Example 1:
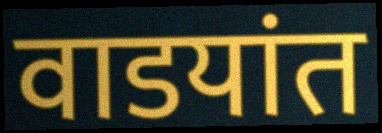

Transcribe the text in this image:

वाडयांत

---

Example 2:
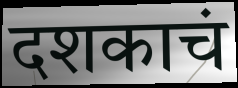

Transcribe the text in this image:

दशकाचं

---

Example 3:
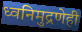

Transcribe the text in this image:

ध्वनिमुद्रणेही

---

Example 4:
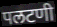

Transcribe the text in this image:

पलटणी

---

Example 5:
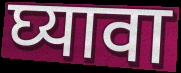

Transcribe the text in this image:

घ्यावा